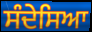
ਸੰਦੇਸਿਆ